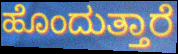
ಹೊಂದುತ್ತಾರೆ